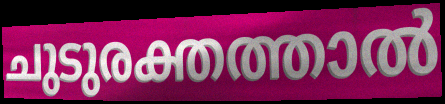
ചുടുരക്തത്താൽ